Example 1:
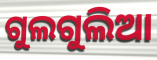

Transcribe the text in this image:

ଗୁଲଗୁଲିଆ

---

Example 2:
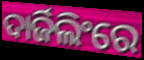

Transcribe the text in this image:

ଦାର୍ଜିଲିଂରେ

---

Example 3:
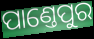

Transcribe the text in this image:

ପାଣ୍ତେପୁର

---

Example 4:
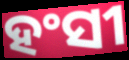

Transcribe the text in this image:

ହଂସୀ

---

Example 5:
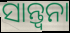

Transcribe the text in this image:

ସାନ୍ତ୍ବନା